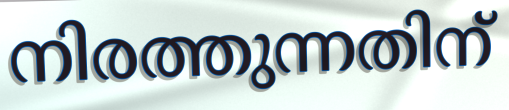
നിരത്തുന്നതിന്